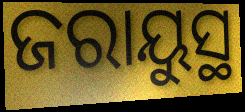
ଜରାୟୁସ୍ଥ